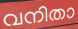
വനിതാ